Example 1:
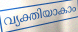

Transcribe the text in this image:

വ്യക്തിയാകാം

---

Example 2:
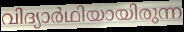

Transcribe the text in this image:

വിദ്യാർഥിയായിരുന്ന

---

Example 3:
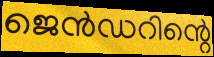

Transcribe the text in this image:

ജെൻഡറിന്റെ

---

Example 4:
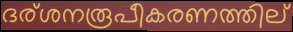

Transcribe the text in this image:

ദര്ശനരൂപീകരണത്തില്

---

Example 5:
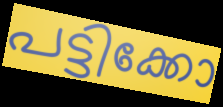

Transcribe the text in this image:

പട്ടിക്കോ